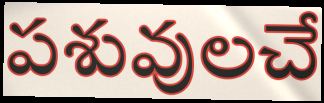
పశువులచే